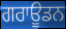
ਗਰਾਊਡਨ